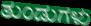
ತುಂಡುಗಳು